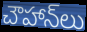
చౌహాన్‌లు